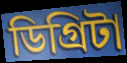
ডিগ্রিটা